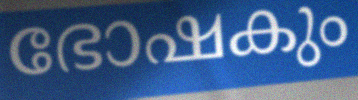
ഭോഷകും